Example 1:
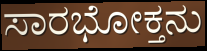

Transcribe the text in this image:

ಸಾರಭೋಕ್ತನು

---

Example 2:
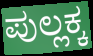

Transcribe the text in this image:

ಪುಲ್ಲಕ್ಕ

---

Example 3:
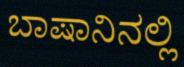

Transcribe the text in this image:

ಬಾಷಾನಿನಲ್ಲಿ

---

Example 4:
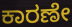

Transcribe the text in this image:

ಕಾರಣೇ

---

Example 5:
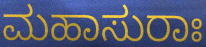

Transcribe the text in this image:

ಮಹಾಸುರಾಃ